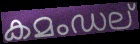
കമംഡല്